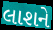
લાશને